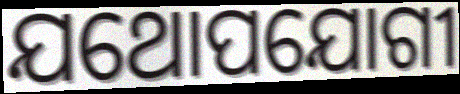
ଯଥୋପଯୋଗୀ